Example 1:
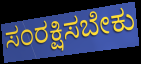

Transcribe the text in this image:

ಸಂರಕ್ಷಿಸಬೇಕು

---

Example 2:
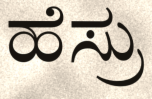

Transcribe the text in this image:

ಹೆಸ್ರು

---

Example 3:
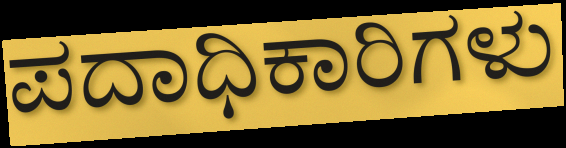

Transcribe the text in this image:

ಪದಾಧಿಕಾರಿಗಳು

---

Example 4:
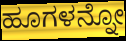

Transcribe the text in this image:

ಹೂಗಳನ್ನೋ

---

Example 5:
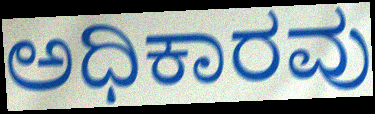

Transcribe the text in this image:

ಅಧಿಕಾರವು